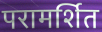
परामर्शित